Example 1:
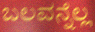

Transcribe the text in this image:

ಬಲವನ್ನೆಲ್ಲ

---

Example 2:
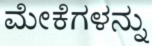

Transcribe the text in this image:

ಮೇಕೆಗಳನ್ನು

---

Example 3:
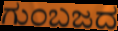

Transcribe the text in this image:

ಗುಂಬಜದ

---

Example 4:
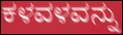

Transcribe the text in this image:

ಕಳವಳವನ್ನು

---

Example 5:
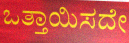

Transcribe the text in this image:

ಒತ್ತಾಯಿಸದೇ